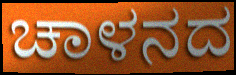
ಚಾಳನದ